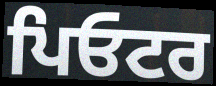
ਪਿਓਟਰ